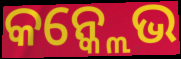
କନ୍କ୍ଲେଭ